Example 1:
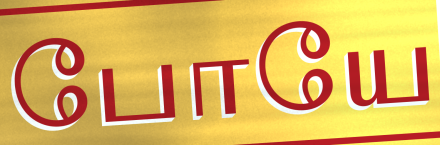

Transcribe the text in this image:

போயே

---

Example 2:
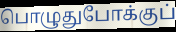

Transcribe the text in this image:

பொழுதுபோக்குப்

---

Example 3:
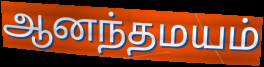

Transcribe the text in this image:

ஆனந்தமயம்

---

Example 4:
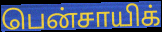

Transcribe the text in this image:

பென்சாயிக்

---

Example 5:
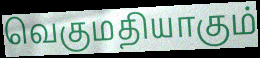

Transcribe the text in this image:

வெகுமதியாகும்